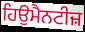
ਹਿਉਮੈਨਟੀਜ਼